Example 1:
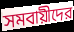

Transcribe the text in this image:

সমবায়ীদের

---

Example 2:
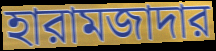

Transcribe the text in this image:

হারামজাদার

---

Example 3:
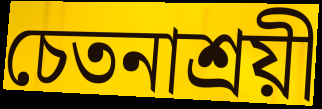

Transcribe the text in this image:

চেতনাশ্রয়ী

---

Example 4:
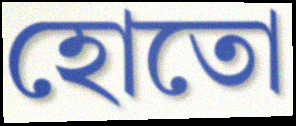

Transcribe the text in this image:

হোতো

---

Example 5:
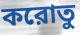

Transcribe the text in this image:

করোতু